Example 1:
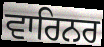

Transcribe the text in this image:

ਵਾਰਿਨਰ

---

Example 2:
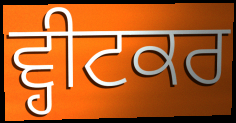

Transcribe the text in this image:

ਵ੍ਹੀਟਕਰ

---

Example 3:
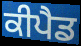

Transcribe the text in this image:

ਕੀਪੈਡ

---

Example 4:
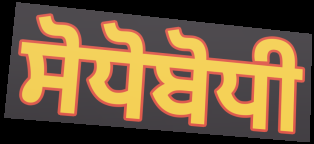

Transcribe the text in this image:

ਸੋਧੋਬੋਧੀ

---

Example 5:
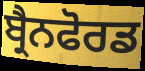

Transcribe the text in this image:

ਬ੍ਰੈਨਫੋਰਡ